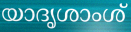
യാദൃശാംശ്